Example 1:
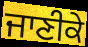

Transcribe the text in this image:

ਜਾਣੀਕੇ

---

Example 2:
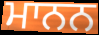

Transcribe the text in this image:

ਮਾਨਨ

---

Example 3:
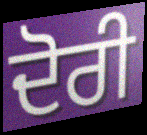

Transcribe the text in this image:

ਦੋਰੀ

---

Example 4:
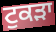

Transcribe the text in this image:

ਟੁਕਡ਼ਾ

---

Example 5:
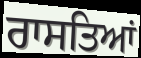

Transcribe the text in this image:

ਰਾਸਤਿਆਂ